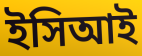
ইসিআই